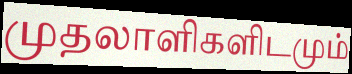
முதலாளிகளிடமும்